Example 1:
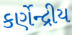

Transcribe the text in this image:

કર્ણેન્દ્રીય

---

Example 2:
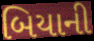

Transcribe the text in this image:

બિયાની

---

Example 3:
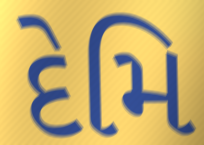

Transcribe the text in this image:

દેમિ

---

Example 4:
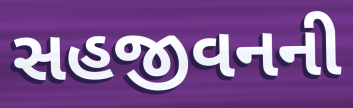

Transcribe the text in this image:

સહજીવનની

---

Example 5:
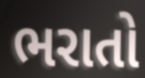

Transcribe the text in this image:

ભરાતો